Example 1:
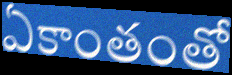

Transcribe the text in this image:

ఏకాంతంతో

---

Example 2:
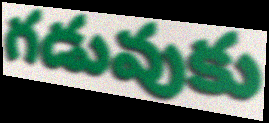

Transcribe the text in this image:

గడువుకు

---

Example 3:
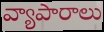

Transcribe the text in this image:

వ్యాపారాలు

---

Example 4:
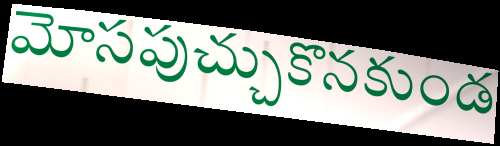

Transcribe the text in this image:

మోసపుచ్చుకొనకుండ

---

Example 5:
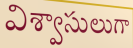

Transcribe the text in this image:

విశ్వాసులుగా